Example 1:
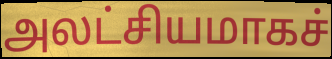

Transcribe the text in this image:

அலட்சியமாகச்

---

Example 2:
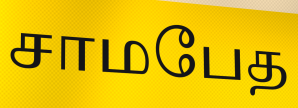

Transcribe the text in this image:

சாமபேத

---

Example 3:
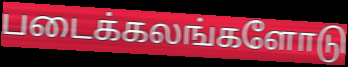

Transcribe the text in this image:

படைக்கலங்களோடு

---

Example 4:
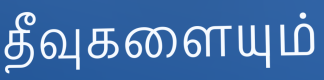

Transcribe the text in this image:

தீவுகளையும்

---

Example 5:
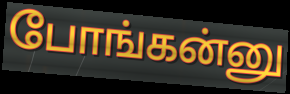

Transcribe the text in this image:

போங்கன்னு